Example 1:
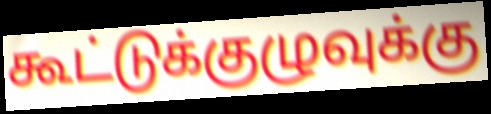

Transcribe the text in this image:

கூட்டுக்குழுவுக்கு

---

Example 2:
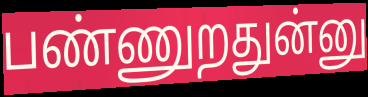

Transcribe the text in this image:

பண்ணுறதுன்னு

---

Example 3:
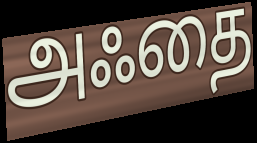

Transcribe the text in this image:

அஃதை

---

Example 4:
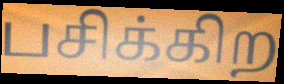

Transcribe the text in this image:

பசிக்கிற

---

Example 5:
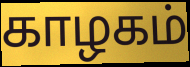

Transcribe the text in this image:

காழகம்